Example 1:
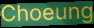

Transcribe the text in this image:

Choeung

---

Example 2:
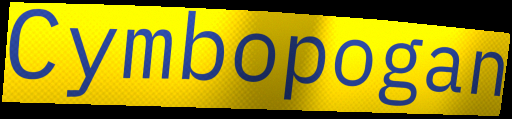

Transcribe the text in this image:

Cymbopogan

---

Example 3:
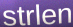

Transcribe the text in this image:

strlen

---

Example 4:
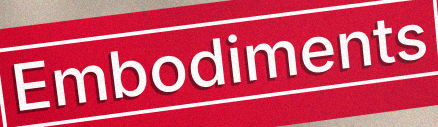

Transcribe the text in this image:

Embodiments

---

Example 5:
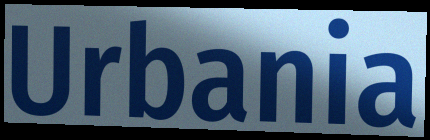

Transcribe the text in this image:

Urbania